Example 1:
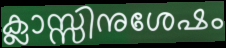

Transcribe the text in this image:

ക്ലാസ്സിനുശേഷം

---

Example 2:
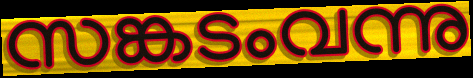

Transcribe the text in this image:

സങ്കടംവന്നു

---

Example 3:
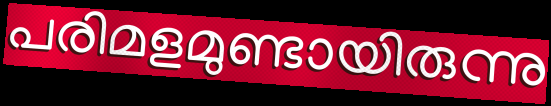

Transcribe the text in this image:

പരിമളമുണ്ടായിരുന്നു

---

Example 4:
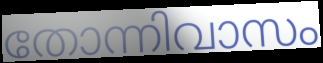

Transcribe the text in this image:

തോന്നിവാസം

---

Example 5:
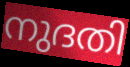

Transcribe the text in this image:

നുദതി